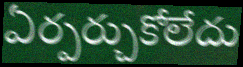
ఏర్పర్చుకోలేదు